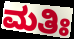
ಮತಿಃ